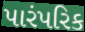
પારંપરિક